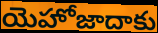
యెహోజాదాకు